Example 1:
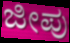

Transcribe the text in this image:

ಜೀಪು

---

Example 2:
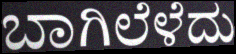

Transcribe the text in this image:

ಬಾಗಿಲೆಳೆದು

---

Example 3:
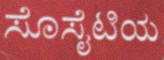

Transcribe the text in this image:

ಸೊಸೈಟಿಯ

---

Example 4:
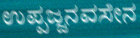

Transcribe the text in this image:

ಉಪ್ಪಜ್ಜನವಸೇನ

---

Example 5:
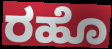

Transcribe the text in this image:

ರಹೊ